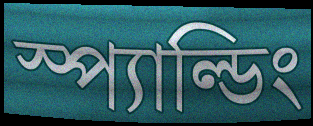
স্প্যাল্ডিং